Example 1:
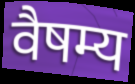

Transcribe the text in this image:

वैषम्य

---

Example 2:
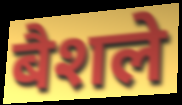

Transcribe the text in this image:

बैशले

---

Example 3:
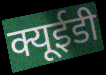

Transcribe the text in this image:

क्यूईडी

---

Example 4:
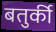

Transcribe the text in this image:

बतुर्की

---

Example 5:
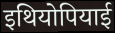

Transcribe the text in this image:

इथियोपियाई